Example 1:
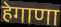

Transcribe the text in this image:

हेगाणा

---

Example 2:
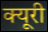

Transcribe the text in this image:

क्यूरी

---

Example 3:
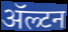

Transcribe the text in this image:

ॲल्टन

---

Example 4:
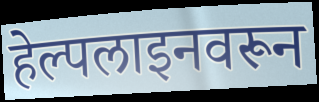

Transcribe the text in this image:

हेल्पलाइनवरून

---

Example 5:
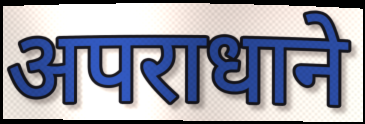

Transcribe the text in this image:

अपराधाने